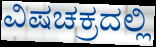
ವಿಷಚಕ್ರದಲ್ಲಿ